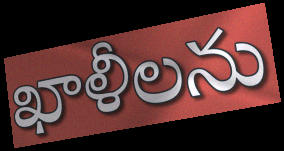
ఖాళీలను